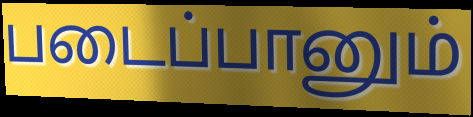
படைப்பானும்